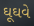
ઘૂઘવે